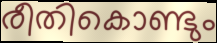
രീതികൊണ്ടും